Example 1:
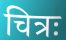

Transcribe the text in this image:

चित्रः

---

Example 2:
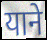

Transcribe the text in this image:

याने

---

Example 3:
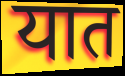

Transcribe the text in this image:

यात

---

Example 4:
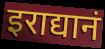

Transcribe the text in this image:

इराद्यानं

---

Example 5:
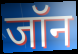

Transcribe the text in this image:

जॉन